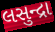
લસુન્દ્રા